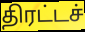
திரட்டச்